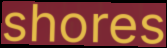
shores